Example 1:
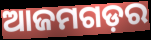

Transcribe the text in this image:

ଆଜମଗଡ଼ର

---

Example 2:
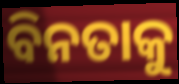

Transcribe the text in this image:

ବିନତାକୁ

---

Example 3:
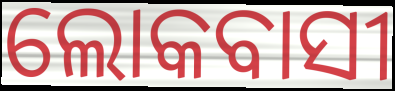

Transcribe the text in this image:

ଲୋକବାସୀ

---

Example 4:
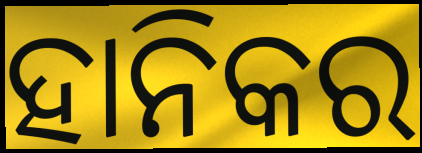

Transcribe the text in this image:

ହାନିକର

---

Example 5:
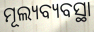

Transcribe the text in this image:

ମୂଲ୍ୟବ୍ୟବସ୍ଥା